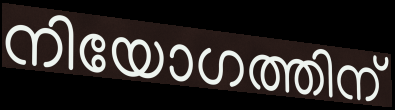
നിയോഗത്തിന്